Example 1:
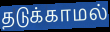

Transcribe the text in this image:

தடுக்காமல்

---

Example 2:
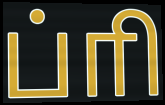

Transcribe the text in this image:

ப்ரி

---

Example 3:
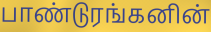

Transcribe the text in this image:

பாண்டுரங்கனின்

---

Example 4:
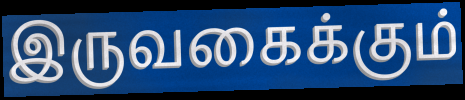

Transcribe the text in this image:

இருவகைக்கும்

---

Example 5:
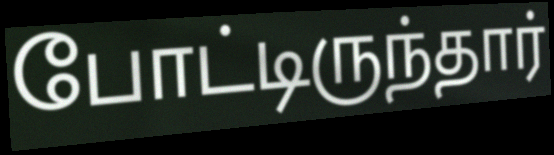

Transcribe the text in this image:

போட்டிருந்தார்